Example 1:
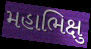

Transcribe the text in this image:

મહાભિક્ષુ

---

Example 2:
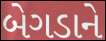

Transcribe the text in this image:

બેગડાને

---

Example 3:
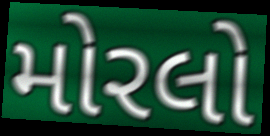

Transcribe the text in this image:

મોરલો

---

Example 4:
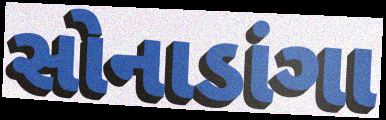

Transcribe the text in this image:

સોનાડાંગા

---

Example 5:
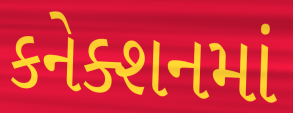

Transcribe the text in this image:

કનેક્શનમાં